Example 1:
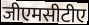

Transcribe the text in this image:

जीएमसीटीए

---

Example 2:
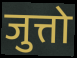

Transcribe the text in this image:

जुत्तो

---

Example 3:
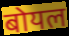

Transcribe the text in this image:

बोयल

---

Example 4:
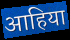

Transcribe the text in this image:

आहिया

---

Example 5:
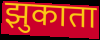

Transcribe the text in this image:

झुकाता